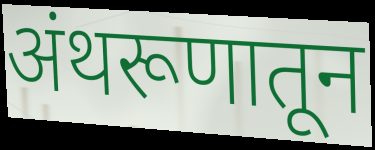
अंथरूणातून